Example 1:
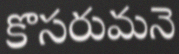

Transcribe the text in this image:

కొసరుమనె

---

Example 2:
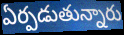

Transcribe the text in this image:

ఏర్పడుతున్నారు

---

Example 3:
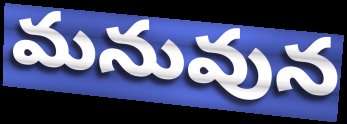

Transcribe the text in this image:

మనువున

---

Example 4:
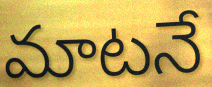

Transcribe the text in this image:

మాటనే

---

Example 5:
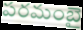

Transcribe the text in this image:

పరమంబై